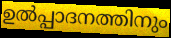
ഉൽപ്പാദനത്തിനും